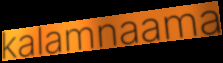
kalamnaama